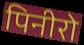
पिनीरो